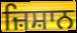
ਜ਼ਿਸ਼ਾਨ